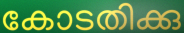
കോടതിക്കു